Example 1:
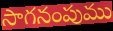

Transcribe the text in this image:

సాగనంపుము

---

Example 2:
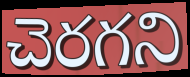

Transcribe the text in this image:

చెరగని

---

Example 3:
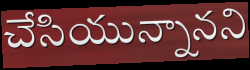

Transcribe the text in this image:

చేసియున్నానని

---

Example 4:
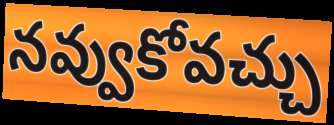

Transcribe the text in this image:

నవ్వుకోవచ్చు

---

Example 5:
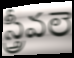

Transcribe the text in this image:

స్త్రీవలె